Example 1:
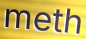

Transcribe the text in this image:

meth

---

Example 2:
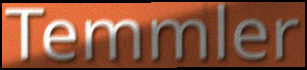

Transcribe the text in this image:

Temmler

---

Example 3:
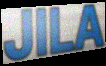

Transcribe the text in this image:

JILA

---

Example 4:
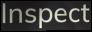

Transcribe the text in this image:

Inspect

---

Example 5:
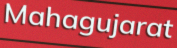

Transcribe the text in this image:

Mahagujarat